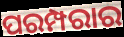
ପରମ୍ପରାର